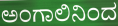
ಅಂಗಾಲಿನಿಂದ